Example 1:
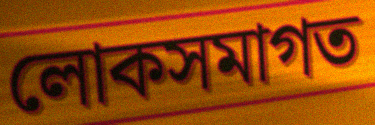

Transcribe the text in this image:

লোকসমাগত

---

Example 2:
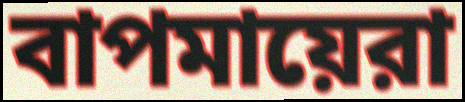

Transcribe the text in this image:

বাপমায়েরা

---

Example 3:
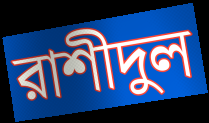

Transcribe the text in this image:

রাশীদুল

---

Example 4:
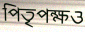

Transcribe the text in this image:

পিতৃপক্ষও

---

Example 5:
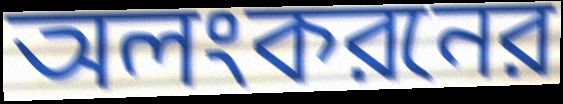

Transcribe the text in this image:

অলংকরনের